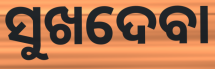
ସୁଖଦେବା